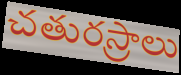
చతురస్రాలు